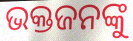
ଭକ୍ତଜନଙ୍କୁ